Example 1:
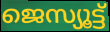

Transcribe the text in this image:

ജെസ്യൂട്ട്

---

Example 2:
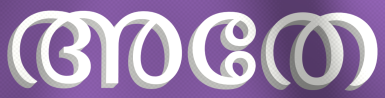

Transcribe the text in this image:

അതേ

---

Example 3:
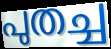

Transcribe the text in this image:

പുതച്ച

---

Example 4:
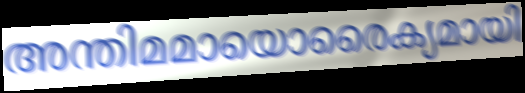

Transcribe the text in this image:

അന്തിമമായൊരൈക്യമായി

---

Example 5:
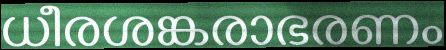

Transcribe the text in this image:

ധീരശങ്കരാഭരണം